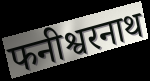
फनीश्वरनाथ